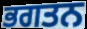
ਭਗਤਨ